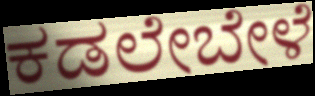
ಕಡಲೇಬೇಳೆ